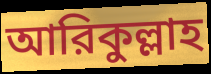
আরিকুল্লাহ